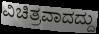
ವಿಚಿತ್ರವಾದದ್ದು